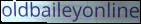
oldbaileyonline